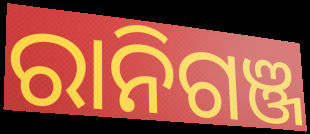
ରାନିଗଞ୍ଜ